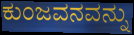
ಕುಂಜವನವನ್ನು